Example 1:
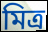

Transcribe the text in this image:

মিত্র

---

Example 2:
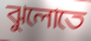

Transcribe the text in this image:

ঝুলোতে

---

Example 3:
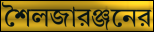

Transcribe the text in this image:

শৈলজারঞ্জনের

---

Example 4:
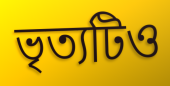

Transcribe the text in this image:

ভৃত্যটিও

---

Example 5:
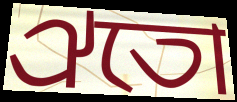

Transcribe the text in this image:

ঐতো